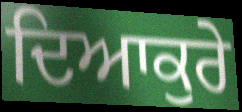
ਦਿਆਕੁਰੇ